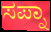
ಸಪ್ನಾ